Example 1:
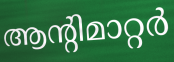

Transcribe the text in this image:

ആന്റിമാറ്റർ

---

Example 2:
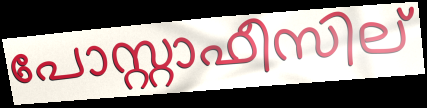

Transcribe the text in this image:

പോസ്റ്റാഫീസില്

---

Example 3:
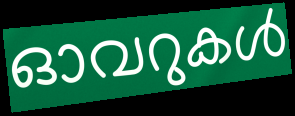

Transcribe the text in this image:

ഓവറുകൾ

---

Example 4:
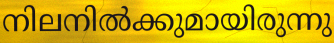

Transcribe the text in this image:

നിലനിൽക്കുമായിരുന്നു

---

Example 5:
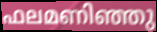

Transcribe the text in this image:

ഫലമണിഞ്ഞു